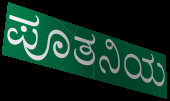
ಪೂತನಿಯ